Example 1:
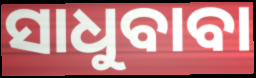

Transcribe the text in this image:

ସାଧୁବାବା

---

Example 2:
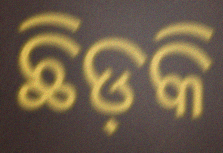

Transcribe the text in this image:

ଛିଡ଼କି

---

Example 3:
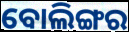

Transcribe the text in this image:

ବୋଲିଙ୍ଗର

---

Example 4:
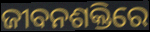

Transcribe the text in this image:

ଜୀବନଶକ୍ତିରେ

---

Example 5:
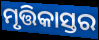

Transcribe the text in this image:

ମୃତ୍ତିକାସ୍ତର